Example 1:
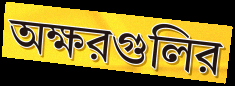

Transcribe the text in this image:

অক্ষরগুলির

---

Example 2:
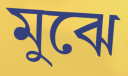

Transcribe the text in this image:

মুঝে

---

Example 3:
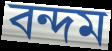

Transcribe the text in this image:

বন্দম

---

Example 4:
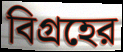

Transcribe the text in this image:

বিগ্রহের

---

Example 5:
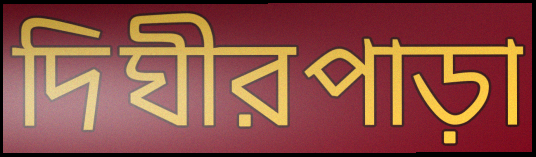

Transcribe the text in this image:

দিঘীরপাড়া